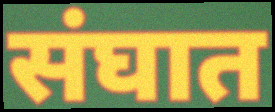
संघात